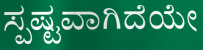
ಸ್ಪಷ್ಟವಾಗಿದೆಯೇ